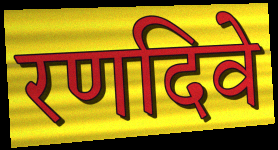
रणदिवे